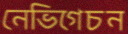
নেভিগেচন